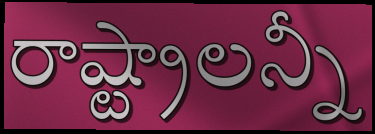
రాష్ట్రాలన్నీ